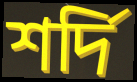
শর্দি